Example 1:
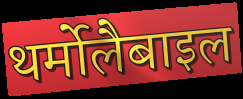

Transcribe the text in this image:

थर्मोलैबाइल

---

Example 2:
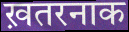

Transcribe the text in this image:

ख़तरनाक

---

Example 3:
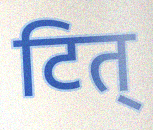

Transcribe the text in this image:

टित्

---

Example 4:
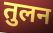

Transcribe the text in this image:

तुलन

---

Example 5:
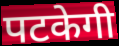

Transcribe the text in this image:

पटकेगी